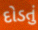
દોડતું